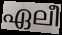
ഏലീ